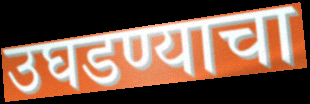
उघडण्याचा